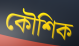
কৌশিক